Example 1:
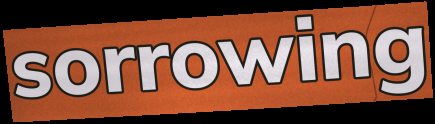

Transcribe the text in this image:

sorrowing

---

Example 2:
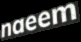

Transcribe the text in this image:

naeem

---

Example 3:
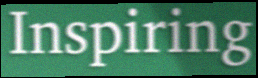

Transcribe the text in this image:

Inspiring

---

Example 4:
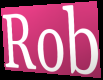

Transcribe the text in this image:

Rob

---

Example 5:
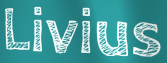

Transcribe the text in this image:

Livius